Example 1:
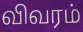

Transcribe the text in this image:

விவரம்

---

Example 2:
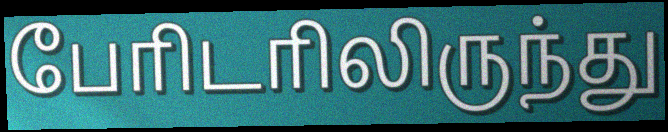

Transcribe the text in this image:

பேரிடரிலிருந்து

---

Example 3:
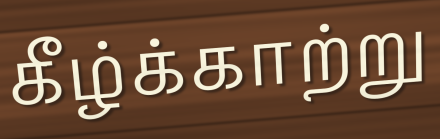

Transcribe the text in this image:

கீழ்க்காற்று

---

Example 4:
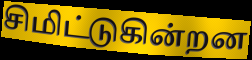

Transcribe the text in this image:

சிமிட்டுகின்றன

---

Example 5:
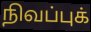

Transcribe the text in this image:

நிவப்புக்